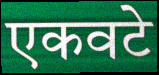
एकवटे